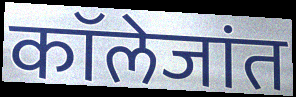
कॉलेजांत